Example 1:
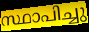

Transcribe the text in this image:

സ്ഥാപിച്ചു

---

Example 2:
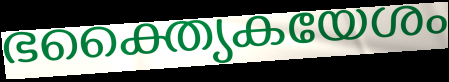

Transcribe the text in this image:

ഭക്ത്യൈകയേശം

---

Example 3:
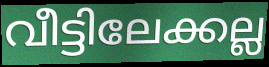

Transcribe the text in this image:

വീട്ടിലേക്കല്ല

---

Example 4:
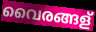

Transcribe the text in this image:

വൈരങ്ങള്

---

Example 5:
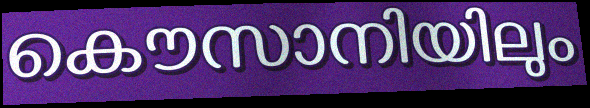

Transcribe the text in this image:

കൌസാനിയിലും